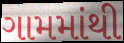
ગામમાંથી